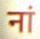
नां